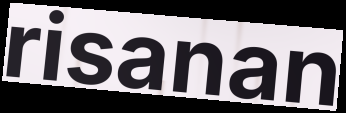
risanan